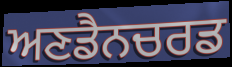
ਅਣਡੈਨਚਰਡ